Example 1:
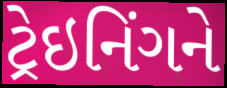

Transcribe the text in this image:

ટ્રેઇનિંગને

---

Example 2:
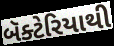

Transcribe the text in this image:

બૅક્ટેરિયાથી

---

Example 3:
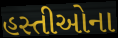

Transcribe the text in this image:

હસ્તીઓના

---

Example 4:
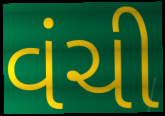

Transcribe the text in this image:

વંચી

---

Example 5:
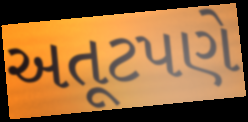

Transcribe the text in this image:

અતૂટપણે